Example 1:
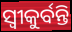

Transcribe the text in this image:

ସ୍ଵୀକୁର୍ବନ୍ତି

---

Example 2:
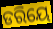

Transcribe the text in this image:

ଡରିୟେ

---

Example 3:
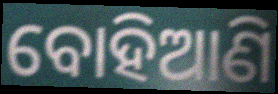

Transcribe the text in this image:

ବୋହିଆଣି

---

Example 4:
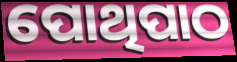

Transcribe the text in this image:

ପୋଥିପାଠ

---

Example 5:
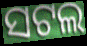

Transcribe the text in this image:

ସଟଲ